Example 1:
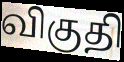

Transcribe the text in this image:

விகுதி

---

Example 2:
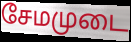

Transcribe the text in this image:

சேமமுடை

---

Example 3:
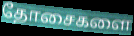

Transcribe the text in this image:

தோசைகளை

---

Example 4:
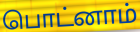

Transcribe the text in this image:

பொட்னாம்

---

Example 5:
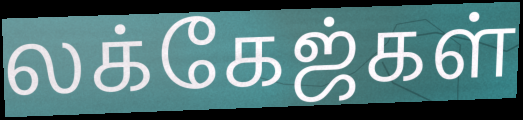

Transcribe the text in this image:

லக்கேஜ்கள்